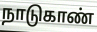
நாடுகாண்